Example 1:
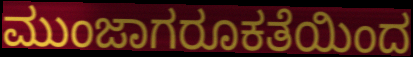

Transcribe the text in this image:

ಮುಂಜಾಗರೂಕತೆಯಿಂದ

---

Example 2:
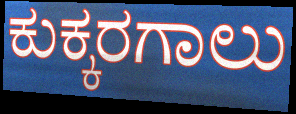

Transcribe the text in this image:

ಕುಕ್ಕರಗಾಲು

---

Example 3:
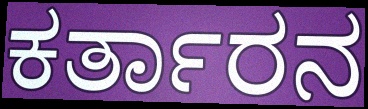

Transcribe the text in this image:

ಕರ್ತಾರನ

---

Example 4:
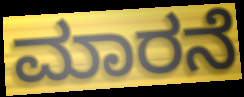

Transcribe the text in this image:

ಮಾರನೆ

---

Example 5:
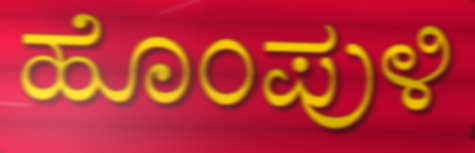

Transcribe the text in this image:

ಹೊಂಪುಳಿ